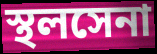
স্থলসেনা